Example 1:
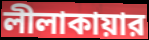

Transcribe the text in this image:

লীলাকায়ার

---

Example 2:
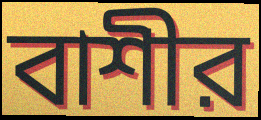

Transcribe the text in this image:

বাশীর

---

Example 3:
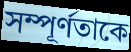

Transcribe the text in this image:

সম্পূর্ণতাকে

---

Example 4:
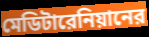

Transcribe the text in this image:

মেডিটারেনিয়ানের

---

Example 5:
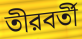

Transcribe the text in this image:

তীরবর্তী